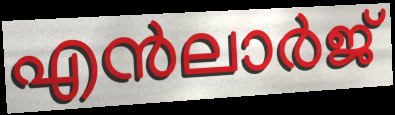
എൻലാർജ്